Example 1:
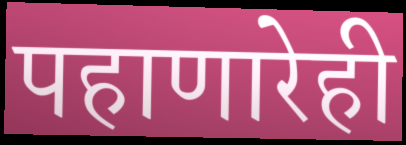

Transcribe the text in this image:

पहाणारेही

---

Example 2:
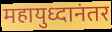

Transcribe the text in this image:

महायुध्दानंतर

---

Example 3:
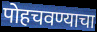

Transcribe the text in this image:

पोहचवण्याचा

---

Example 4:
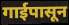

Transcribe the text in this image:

गाईपासून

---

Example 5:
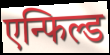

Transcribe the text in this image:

एन्फिल्ड